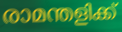
രാമന്തളിക്ക്